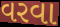
વરવા